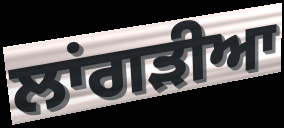
ਲਾਂਗੜੀਆ